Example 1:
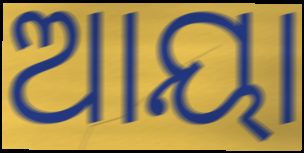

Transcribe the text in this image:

ଆୟା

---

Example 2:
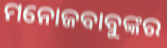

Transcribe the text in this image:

ମନୋଜବାବୁଙ୍କର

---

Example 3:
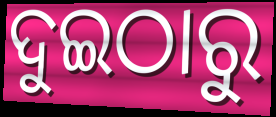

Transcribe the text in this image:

ଦୁଇଠାରୁ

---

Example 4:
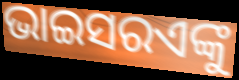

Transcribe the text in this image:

ଭାଇସରଏଙ୍କୁ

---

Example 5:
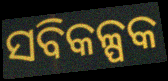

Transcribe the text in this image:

ସବିକଳ୍ପକ